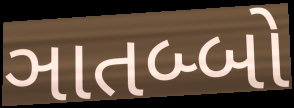
ઞાતબ્બો